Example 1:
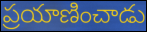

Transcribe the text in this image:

ప్రయాణించాడు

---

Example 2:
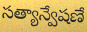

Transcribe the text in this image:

సత్యాన్వేషణే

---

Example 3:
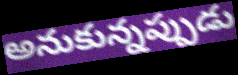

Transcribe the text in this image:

అనుకున్నప్పుడు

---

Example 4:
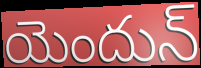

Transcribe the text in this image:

యెందున్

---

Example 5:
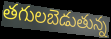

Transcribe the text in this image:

తగులబెడుతున్న